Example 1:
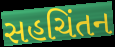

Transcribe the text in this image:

સહચિંતન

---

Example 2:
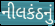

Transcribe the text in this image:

નીલકંઠનું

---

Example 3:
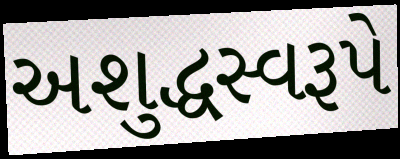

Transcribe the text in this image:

અશુદ્ધસ્વરૂપે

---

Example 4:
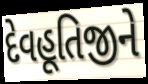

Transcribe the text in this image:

દેવહૂતિજીને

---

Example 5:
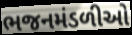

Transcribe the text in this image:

ભજનમંડળીઓ